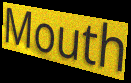
Mouth